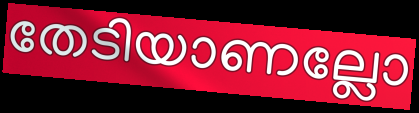
തേടിയാണല്ലോ